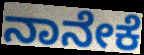
ನಾನೇಕೆ